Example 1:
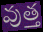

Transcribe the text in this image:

వుత్త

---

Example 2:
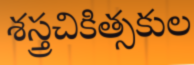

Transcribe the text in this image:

శస్త్రచికిత్సకుల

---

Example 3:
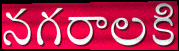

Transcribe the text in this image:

నగరాలకి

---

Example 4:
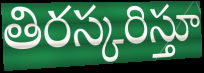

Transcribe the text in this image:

తిరస్కరిస్తూ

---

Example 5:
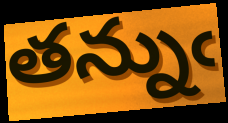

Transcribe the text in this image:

తన్నుఁ